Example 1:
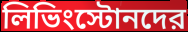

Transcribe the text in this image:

লিভিংস্টোনদের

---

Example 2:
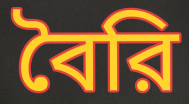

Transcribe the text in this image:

বৈরি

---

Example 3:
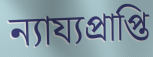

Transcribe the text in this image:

ন্যায্যপ্রাপ্তি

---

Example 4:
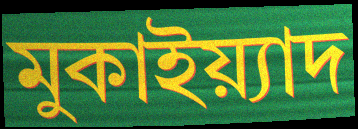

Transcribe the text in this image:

মুকাইয়্যাদ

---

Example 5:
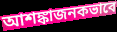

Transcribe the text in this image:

আশঙ্কাজনকভাবে